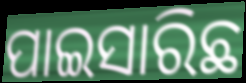
ପାଇସାରିଛ